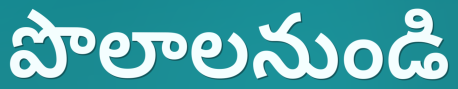
పొలాలనుండి